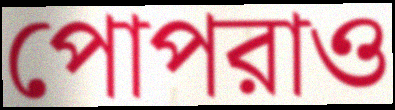
পোপরাও